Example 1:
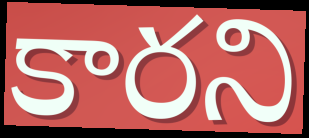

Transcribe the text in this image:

కారని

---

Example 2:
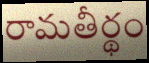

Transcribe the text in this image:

రామతీర్థం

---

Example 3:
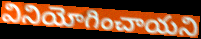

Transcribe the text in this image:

వినియోగించాయని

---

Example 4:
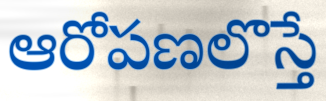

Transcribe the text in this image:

ఆరోపణలొస్తే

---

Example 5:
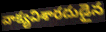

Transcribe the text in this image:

వాక్యవిశారదుడైన